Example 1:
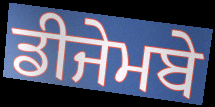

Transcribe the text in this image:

ਡੀਜੇਮਬੇ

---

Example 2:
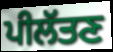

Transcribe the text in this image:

ਪੀਲੱਤਣ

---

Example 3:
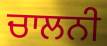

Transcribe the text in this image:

ਚਾਲਨੀ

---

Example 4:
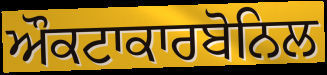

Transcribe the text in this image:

ਔਕਟਾਕਾਰਬੋਨਿਲ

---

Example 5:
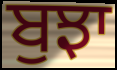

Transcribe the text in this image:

ਬੁਝਾ